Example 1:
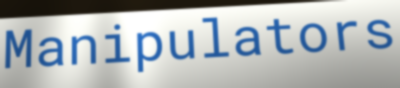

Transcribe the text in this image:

Manipulators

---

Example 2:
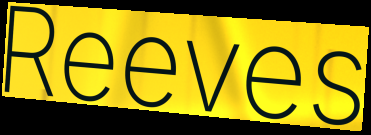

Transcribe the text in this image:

Reeves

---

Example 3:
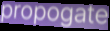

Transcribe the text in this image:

propogate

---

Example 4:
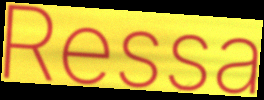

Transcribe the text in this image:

Ressa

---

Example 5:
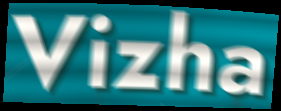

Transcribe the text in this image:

Vizha